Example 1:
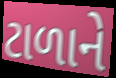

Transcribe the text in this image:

ટાળાને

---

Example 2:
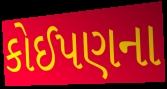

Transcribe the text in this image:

કોઈપણના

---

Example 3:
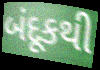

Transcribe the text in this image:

બંદૂકથી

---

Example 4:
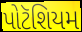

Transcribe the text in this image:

પોટૅશિયમ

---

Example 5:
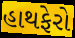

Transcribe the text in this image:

હાથફેરો